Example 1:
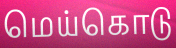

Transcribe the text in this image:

மெய்கொடு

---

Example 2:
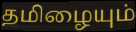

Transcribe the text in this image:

தமிழையும்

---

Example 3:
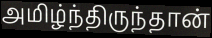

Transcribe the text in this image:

அமிழ்ந்திருந்தான்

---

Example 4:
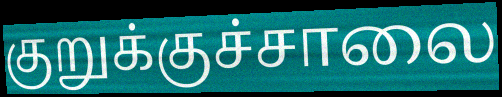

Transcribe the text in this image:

குறுக்குச்சாலை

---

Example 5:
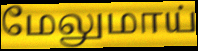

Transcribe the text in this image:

மேலுமாய்